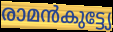
രാമൻകുട്ട്യേ